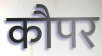
कौपर